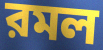
রমল